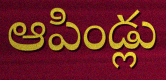
ఆపిండ్లు